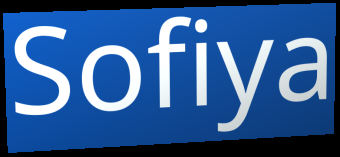
Sofiya